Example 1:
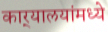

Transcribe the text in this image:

कार्यालयांमध्ये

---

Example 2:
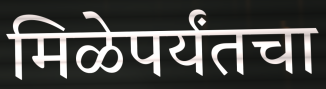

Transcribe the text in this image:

मिळेपर्यंतचा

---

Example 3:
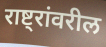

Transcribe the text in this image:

राष्ट्रांवरील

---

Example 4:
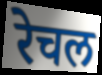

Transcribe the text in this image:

रेचल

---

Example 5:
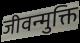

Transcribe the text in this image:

जीवन्मुक्ति